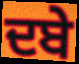
ਦਬੇ